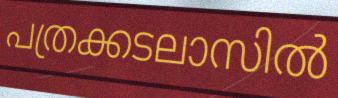
പത്രക്കടലാസിൽ